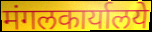
मंगलकार्यालये